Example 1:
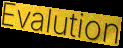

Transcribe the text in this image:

Evalution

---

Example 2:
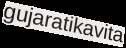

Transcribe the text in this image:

gujaratikavita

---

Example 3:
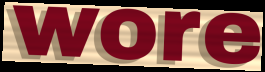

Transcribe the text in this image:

wore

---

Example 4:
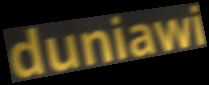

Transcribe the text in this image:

duniawi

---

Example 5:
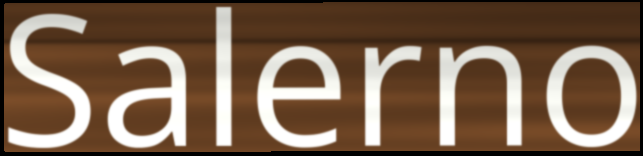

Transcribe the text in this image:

Salerno